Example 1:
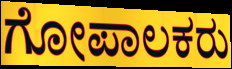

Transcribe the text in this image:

ಗೋಪಾಲಕರು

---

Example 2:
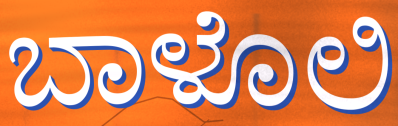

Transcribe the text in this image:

ಬಾಳೊಲಿ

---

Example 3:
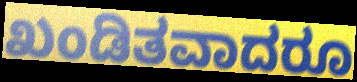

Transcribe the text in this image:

ಖಂಡಿತವಾದರೂ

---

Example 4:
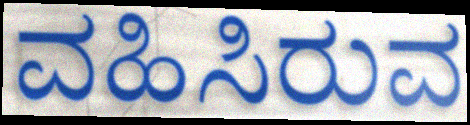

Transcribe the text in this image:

ವಹಿಸಿರುವ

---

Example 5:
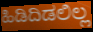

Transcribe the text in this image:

ಹಿಡಿದಿಡಲಿಲ್ಲ